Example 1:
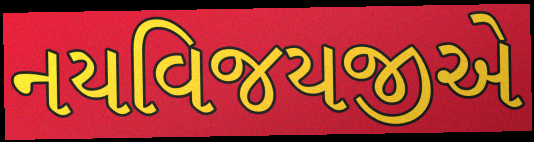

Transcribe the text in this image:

નયવિજયજીએ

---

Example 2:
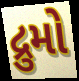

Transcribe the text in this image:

દ્રુમો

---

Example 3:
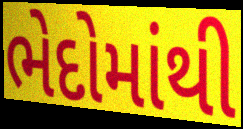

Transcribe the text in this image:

ભેદોમાંથી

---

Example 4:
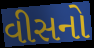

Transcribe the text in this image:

વીસનો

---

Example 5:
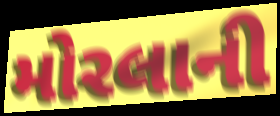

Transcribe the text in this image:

મોરલાની